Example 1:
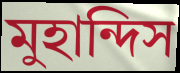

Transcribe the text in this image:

মুহান্দিস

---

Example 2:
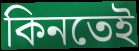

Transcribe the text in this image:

কিনতেই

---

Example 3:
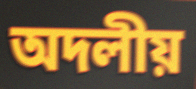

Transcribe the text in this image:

অদলীয়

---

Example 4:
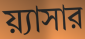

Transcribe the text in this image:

য়্যাসার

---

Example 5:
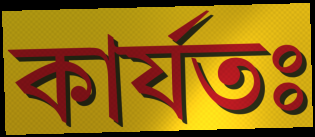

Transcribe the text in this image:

কার্যতঃ